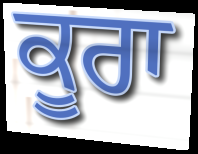
ਕੂਰਾ